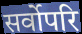
सर्वोपरि